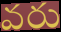
వరు